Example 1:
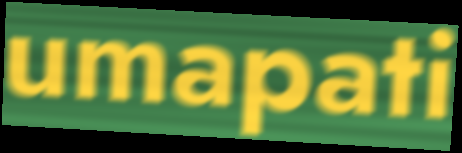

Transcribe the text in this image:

umapati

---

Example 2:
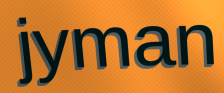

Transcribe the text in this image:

jyman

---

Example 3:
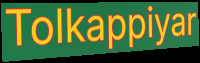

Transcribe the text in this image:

Tolkappiyar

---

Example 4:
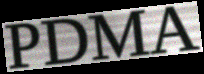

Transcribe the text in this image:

PDMA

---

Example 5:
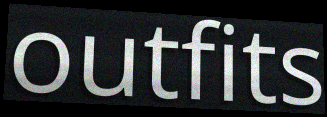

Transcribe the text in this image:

outfits